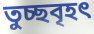
তুচ্ছবৃহৎ